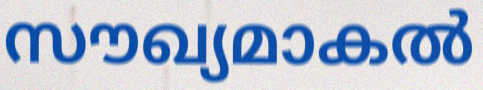
സൗഖ്യമാകൽ